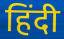
हिंदी